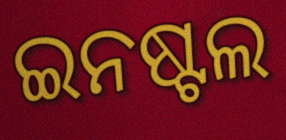
ଇନଷ୍ଟଲ